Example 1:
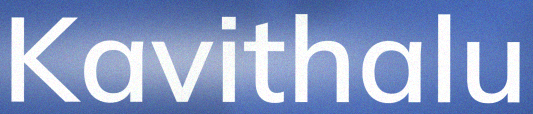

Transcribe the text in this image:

Kavithalu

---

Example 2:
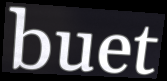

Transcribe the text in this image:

buet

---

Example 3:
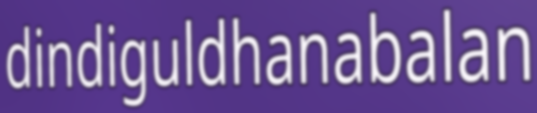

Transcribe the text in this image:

dindiguldhanabalan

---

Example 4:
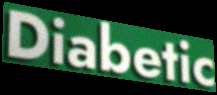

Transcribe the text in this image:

Diabetic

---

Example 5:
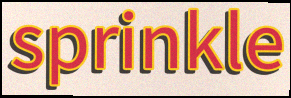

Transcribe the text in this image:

sprinkle